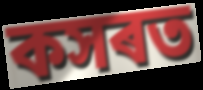
কসৰত